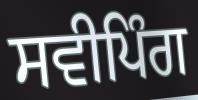
ਸਵੀਪਿੰਗ